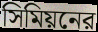
সিমিয়নের